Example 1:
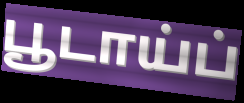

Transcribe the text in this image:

பூடாய்ப்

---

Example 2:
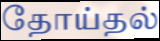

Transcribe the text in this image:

தோய்தல்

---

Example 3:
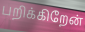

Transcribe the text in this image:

பறிக்கிறேன்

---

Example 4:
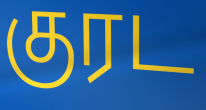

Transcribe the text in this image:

குரட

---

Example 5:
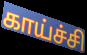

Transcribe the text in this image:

காய்ச்சி